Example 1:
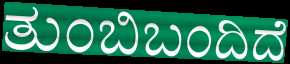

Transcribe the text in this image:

ತುಂಬಿಬಂದಿದೆ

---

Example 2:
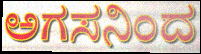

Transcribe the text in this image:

ಅಗಸನಿಂದ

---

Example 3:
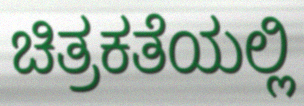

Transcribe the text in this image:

ಚಿತ್ರಕತೆಯಲ್ಲಿ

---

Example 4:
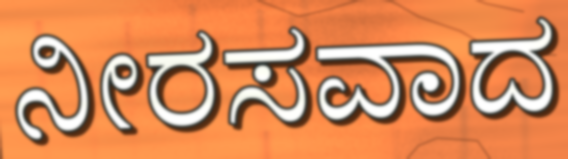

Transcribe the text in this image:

ನೀರಸವಾದ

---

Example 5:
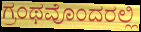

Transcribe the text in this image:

ಗ್ರಂಥವೊಂದರಲ್ಲಿ